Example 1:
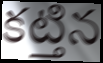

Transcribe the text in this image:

కట్తిన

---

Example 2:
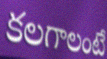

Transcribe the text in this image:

కలగాలంటే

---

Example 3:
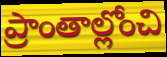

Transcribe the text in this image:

ప్రాంతాల్లోంచి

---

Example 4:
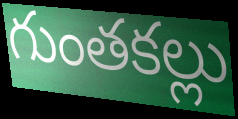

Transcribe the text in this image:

గుంతకల్లు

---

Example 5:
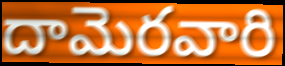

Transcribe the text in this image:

దామెరవారి